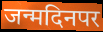
जन्मदिनपर